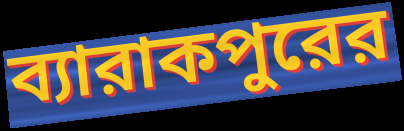
ব্যারাকপুরের